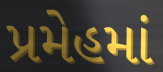
પ્રમેહમાં